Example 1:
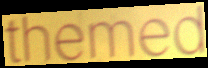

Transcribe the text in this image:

themed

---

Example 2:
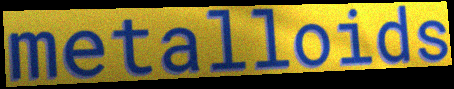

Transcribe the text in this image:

metalloids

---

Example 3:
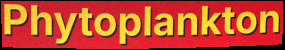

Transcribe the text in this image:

Phytoplankton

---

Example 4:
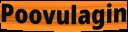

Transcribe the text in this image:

Poovulagin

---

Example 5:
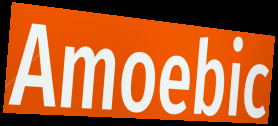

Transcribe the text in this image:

Amoebic